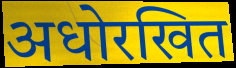
अधोरखित